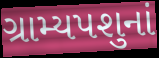
ગ્રામ્યપશુનાં